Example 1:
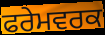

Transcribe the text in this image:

ਫਰੇਮਵਰਕ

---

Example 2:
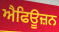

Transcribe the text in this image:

ਐਫਿਊਜ਼ਨ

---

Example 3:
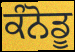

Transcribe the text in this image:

ਕੰਨੋਡੂ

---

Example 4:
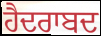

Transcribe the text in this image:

ਹੈਦਰਾਬਦ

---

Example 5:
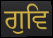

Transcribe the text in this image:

ਗੁਵਿ